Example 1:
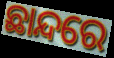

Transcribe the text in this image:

ଛାନ୍ଦରେ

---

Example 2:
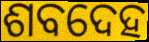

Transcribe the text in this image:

ଶବଦେହ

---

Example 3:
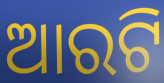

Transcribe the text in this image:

ଆରଟି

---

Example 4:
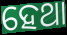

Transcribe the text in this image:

ହେଥା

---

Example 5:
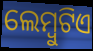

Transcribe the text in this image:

ଲେମ୍ବୁଟିଏ